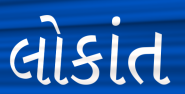
લોકાંત